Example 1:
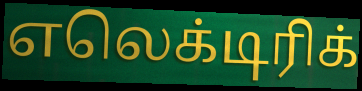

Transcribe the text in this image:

எலெக்டிரிக்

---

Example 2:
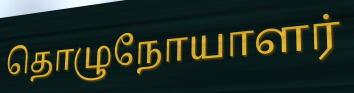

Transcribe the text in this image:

தொழுநோயாளர்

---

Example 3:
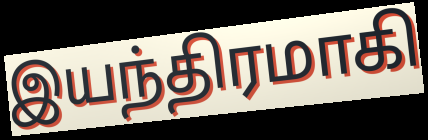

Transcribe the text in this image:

இயந்திரமாகி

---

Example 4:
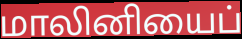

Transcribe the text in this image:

மாலினியைப்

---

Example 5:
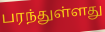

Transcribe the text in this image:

பரந்துள்ளது